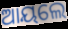
ଆୟଲେ